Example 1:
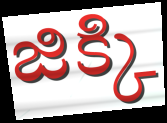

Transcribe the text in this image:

జిక్కి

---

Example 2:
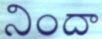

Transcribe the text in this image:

నిందా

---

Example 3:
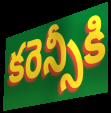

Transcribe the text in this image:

కరెన్సీకి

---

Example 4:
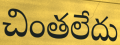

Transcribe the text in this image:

చింతలేదు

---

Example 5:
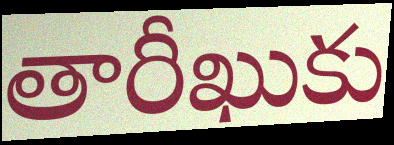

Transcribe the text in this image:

తారీఖుకు